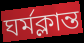
ঘর্মক্লান্ত